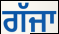
ਗੱਜਾ